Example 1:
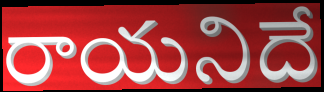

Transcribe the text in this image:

రాయనిదే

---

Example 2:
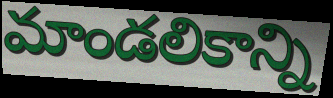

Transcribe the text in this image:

మాండలికాన్ని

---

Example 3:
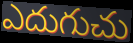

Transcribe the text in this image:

ఎదుగుచు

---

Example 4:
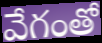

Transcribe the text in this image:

వేగంతో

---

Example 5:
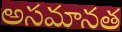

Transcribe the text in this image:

అసమానత